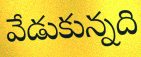
వేడుకున్నది